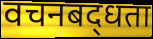
वचनबद्धता